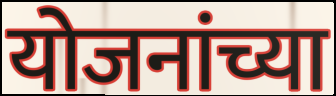
योजनांच्या